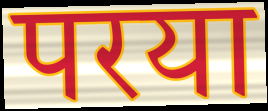
परया